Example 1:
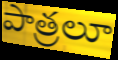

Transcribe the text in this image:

పాత్రలూ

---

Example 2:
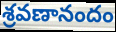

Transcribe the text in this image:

శ్రవణానందం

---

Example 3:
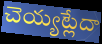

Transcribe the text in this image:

చెయ్యట్లేదా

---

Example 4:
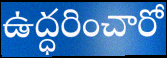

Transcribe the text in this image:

ఉద్ధరించారో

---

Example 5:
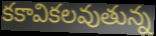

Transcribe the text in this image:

కకావికలవుతున్న